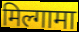
मिल्गामा